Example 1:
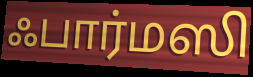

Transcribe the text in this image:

ஃபார்மஸி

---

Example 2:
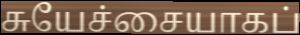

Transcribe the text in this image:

சுயேச்சையாகப்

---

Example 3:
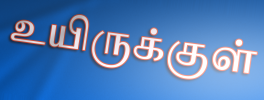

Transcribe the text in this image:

உயிருக்குள்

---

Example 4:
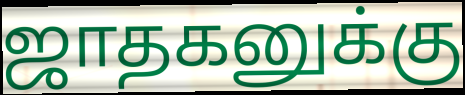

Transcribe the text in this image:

ஜாதகனுக்கு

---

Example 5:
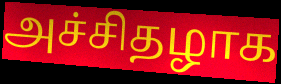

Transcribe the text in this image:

அச்சிதழாக